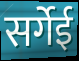
सर्गेई